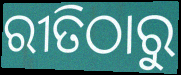
ରୀତିଠାରୁ